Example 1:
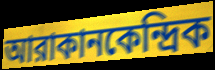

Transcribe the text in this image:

আরাকানকেন্দ্রিক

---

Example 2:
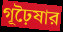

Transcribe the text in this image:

গূঢ়ৈষার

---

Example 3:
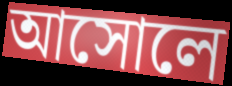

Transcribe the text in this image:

আসোলে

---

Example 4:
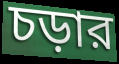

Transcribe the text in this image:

চড়ার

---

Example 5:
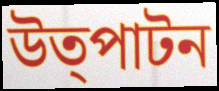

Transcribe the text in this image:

উত্পাটন